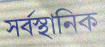
সর্বস্থানিক